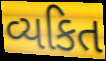
વ્યકિત